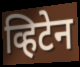
व्हिटेन